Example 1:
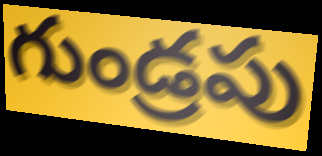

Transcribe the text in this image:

గుండ్రపు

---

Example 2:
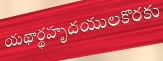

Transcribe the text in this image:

యథార్థహృదయులకొరకు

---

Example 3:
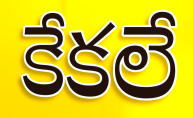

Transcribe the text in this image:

కేకలే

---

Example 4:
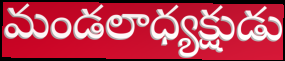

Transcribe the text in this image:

మండలాధ్యక్షుడు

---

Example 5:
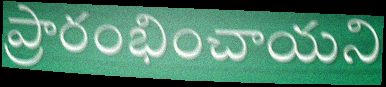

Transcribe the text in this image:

ప్రారంభించాయని